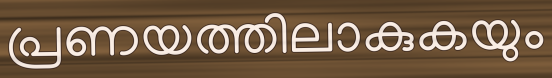
പ്രണയത്തിലാകുകയും